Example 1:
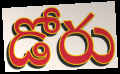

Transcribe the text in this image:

డోరు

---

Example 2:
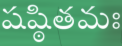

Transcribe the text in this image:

షష్ఠితమః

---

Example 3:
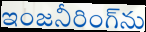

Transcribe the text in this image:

ఇంజనీరింగ్‌ను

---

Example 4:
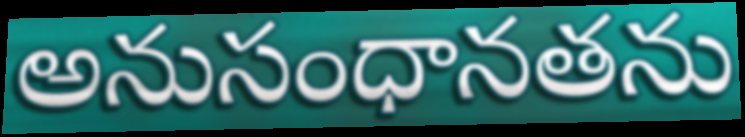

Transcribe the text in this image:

అనుసంధానతను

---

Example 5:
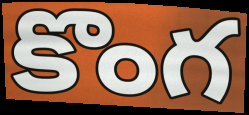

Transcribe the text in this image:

కొంగ